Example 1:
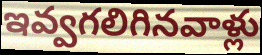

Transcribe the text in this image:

ఇవ్వగలిగినవాళ్లు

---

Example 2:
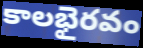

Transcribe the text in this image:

కాలభైరవం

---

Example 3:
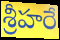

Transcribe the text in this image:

శ్రీహరే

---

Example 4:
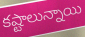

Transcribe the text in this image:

కష్టాలున్నాయి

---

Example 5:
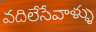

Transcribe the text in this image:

వదిలేసేవాళ్ళు